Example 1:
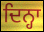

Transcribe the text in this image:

ਦਿਨ੍ਹਾ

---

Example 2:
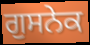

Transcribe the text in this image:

ਗੁਸਨੇਕ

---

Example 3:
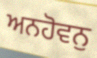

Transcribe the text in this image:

ਅਨਹੋਵਨੁ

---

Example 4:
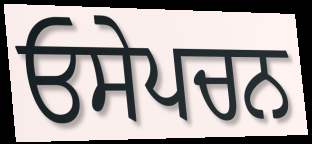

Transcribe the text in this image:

ਓਸੇਪਚਨ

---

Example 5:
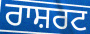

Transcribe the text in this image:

ਰਾਸ਼ਰਟ